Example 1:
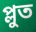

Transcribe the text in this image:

প্লুত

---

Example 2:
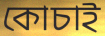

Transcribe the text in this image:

কোচাই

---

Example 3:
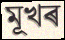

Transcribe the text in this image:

মূখৰ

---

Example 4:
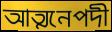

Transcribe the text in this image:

আত্মনেপদী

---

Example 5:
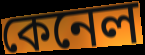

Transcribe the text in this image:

কেনেল